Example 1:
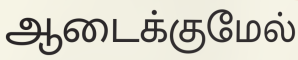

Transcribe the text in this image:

ஆடைக்குமேல்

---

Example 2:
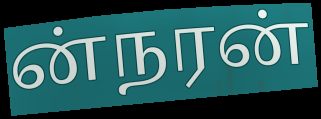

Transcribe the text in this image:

ன்நரன்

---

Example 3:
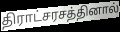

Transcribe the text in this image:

திராட்சரசத்தினால்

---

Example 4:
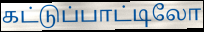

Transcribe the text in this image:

கட்டுப்பாட்டிலோ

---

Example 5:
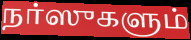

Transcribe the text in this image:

நர்ஸுகளும்